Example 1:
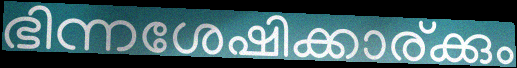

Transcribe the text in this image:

ഭിന്നശേഷിക്കാര്ക്കും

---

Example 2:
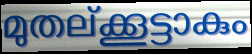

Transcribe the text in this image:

മുതല്ക്കൂട്ടാകും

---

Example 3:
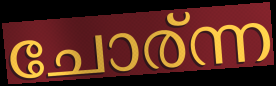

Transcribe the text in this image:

ചോര്ന്ന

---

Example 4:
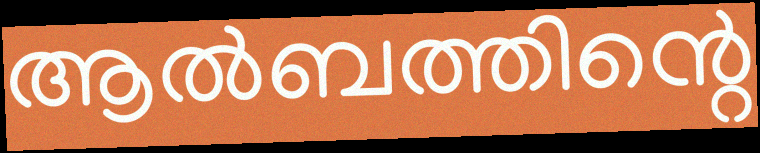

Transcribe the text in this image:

ആൽബത്തിന്റെ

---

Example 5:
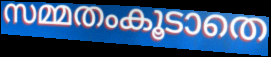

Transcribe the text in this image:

സമ്മതംകൂടാതെ